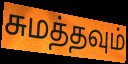
சுமத்தவும்